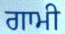
ਗਾਮੀ